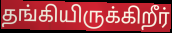
தங்கியிருக்கிறீர்